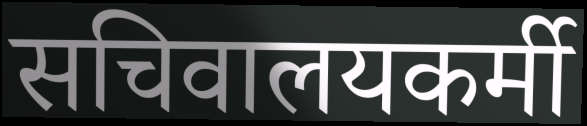
सचिवालयकर्मी